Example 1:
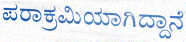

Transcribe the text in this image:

ಪರಾಕ್ರಮಿಯಾಗಿದ್ದಾನೆ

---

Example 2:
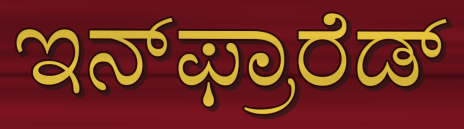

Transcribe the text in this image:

ಇನ್‌ಫ್ರಾರೆಡ್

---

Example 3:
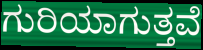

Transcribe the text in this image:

ಗುರಿಯಾಗುತ್ತವೆ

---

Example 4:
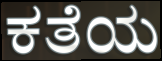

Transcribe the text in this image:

ಕತೆಯ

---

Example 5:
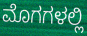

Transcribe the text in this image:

ಮೊಗಗಳಲ್ಲಿ